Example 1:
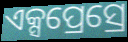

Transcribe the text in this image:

ଏକ୍ସପ୍ରେସ୍ରେ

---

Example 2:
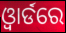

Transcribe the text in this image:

ଓ୍ବାର୍ଡରେ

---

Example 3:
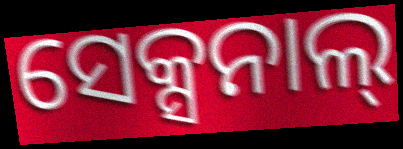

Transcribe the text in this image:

ସେକ୍ସନାଲ୍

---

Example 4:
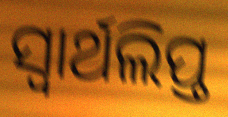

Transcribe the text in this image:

ସ୍ୱାର୍ଥଲିପ୍ତ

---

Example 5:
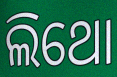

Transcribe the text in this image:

ଲିଥୋ